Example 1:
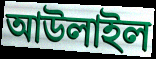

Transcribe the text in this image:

আউলাইল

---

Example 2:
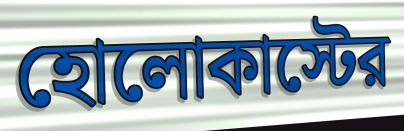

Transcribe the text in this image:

হোলোকাস্টের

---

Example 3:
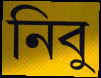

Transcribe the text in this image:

নিবু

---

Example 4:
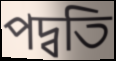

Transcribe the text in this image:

পদ্বতি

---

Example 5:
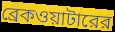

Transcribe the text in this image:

ব্রেকওয়াটারের